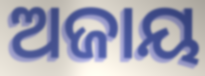
ଅଜାୟ